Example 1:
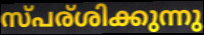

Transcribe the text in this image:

സ്പര്ശിക്കുന്നു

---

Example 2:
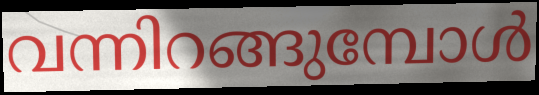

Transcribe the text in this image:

വന്നിറങ്ങുമ്പോൾ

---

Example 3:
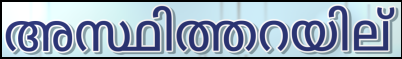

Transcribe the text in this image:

അസ്ഥിത്തറയില്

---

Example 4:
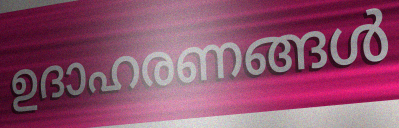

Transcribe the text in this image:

ഉദാഹരണങ്ങൾ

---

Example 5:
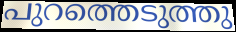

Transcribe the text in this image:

പുറത്തെടുത്തു